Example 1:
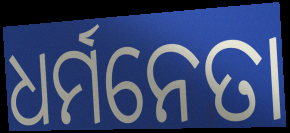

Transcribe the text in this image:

ଧର୍ମନେତା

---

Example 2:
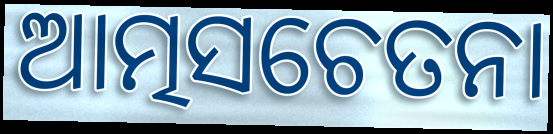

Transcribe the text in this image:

ଆତ୍ମସଚେତନା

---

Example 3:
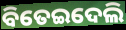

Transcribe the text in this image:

ବିତେଇଦେଲି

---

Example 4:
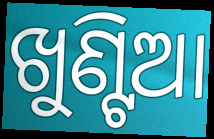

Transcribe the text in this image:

ଖୁଣ୍ଟିଆ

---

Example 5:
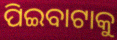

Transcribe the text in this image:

ପିଇବାଟାକୁ